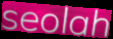
seolah